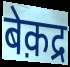
बेक़द्र